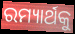
ରମ୍ୟାର୍ଥକୁ